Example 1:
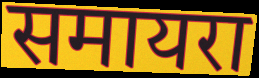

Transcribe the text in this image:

समायरा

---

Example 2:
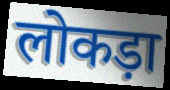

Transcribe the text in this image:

लोकड़ा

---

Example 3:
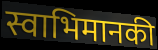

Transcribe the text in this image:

स्वाभिमानकी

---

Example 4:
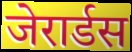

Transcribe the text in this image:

जेरार्डस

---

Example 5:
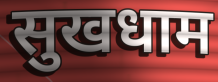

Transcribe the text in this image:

सुखधाम